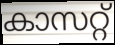
കാസറ്റ്